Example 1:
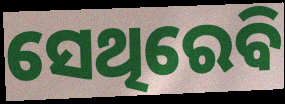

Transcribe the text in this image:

ସେଥିରେବି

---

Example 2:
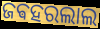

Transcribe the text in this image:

ଜଵହରଲାଲ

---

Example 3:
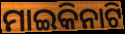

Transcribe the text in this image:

ମାଇକିନାଟି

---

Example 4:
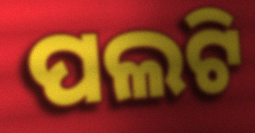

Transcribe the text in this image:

ପଲଟି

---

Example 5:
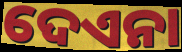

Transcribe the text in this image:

ଦେଏନା